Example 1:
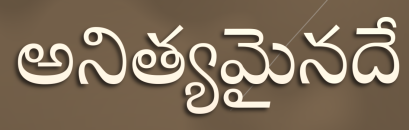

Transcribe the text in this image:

అనిత్యమైనదే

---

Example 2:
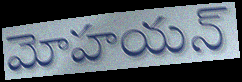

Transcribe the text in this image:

మోహయన్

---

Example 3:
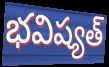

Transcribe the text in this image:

భవిష్యత్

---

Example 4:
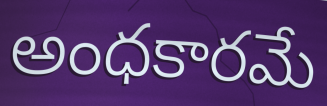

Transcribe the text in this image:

అంధకారమే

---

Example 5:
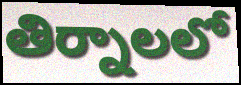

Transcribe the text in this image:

తిర్నాలలో